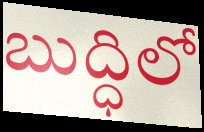
బుద్ధిలో